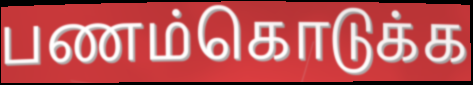
பணம்கொடுக்க